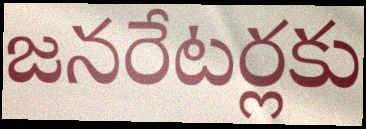
జనరేటర్లకు